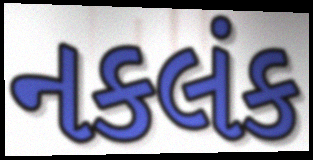
નકલંક